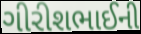
ગીરીશભાઈની